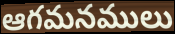
ఆగమనములు